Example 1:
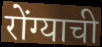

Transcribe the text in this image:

रोंग्याची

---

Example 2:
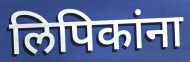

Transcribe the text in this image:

लिपिकांना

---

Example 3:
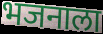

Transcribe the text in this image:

भजनाला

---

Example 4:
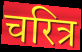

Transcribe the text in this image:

चरित्र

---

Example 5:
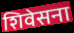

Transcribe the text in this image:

शिवेसना